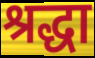
श्रद्धा